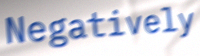
Negatively